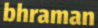
bhraman